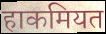
हाकमियत